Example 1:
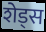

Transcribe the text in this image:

शेड्स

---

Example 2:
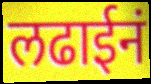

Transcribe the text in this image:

लढाईनं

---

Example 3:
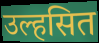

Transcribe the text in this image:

उल्हसित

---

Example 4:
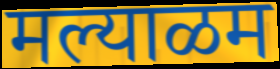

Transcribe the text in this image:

मल्याळम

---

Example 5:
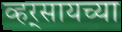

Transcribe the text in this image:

व्हर्सायच्या